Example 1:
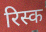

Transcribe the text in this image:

रिस्क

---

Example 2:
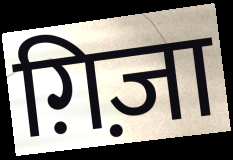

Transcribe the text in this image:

ग़िज़ा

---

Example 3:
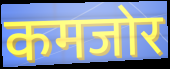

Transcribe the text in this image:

कमजोर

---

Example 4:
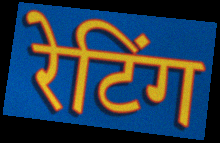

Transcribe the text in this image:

रेटिंग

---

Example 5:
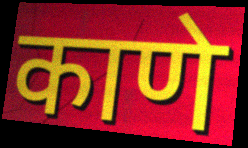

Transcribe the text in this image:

काणे